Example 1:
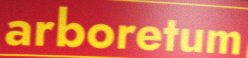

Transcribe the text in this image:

arboretum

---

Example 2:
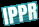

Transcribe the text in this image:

IPPR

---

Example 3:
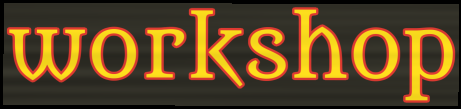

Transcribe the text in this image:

workshop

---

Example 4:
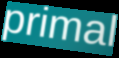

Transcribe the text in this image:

primal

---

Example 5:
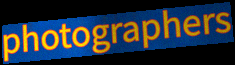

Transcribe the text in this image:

photographers